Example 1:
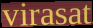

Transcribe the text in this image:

virasat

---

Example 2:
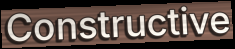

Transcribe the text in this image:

Constructive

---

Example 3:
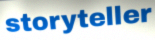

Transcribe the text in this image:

storyteller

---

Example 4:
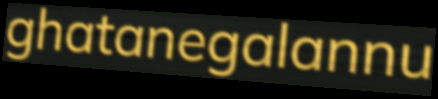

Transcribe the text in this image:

ghatanegalannu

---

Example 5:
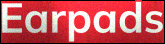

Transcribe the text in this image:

Earpads